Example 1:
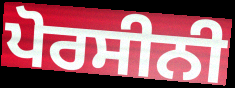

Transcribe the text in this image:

ਪੋਰਸੀਨੀ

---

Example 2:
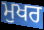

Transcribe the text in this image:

ਮੁਖਰ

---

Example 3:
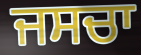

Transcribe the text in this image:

ਜਸਚਾ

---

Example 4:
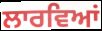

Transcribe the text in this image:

ਲਾਰਵਿਆਂ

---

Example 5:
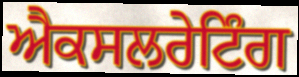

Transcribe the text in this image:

ਐਕਸਲਰੇਟਿੰਗ